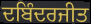
ਦਬਿੰਦਰਜੀਤ